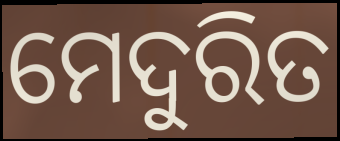
ମେଦୁରିତ